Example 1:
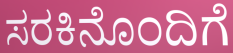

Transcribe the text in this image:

ಸರಕಿನೊಂದಿಗೆ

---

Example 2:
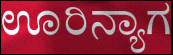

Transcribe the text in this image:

ಊರಿನ್ಯಾಗ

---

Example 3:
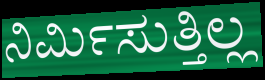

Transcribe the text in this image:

ನಿರ್ಮಿಸುತ್ತಿಲ್ಲ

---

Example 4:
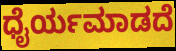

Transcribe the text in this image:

ಧೈರ್ಯಮಾಡದೆ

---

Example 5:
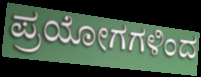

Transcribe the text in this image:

ಪ್ರಯೋಗಗಳಿಂದ